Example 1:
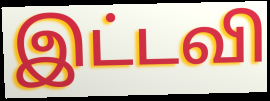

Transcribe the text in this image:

இட்டவி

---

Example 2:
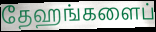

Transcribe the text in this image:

தேஹங்களைப்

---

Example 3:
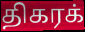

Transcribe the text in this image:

திகரக்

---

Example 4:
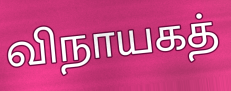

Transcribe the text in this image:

விநாயகத்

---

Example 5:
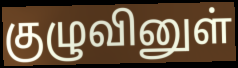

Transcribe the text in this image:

குழுவினுள்